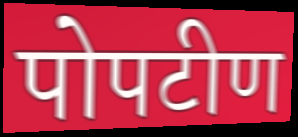
पोपटीण